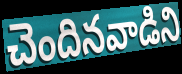
చెందినవాడిని